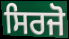
ਸਿਰਜੋ